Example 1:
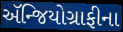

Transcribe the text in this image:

ઍન્જિયોગ્રાફીના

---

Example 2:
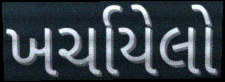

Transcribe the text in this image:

ખર્ચાયેલો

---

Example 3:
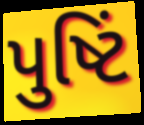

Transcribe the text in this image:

પુષ્ટિં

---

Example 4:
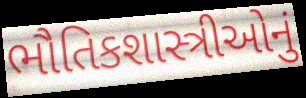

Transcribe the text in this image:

ભૌતિકશાસ્ત્રીઓનું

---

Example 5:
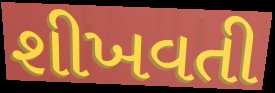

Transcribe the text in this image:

શીખવતી